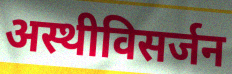
अस्थीविसर्जन